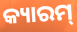
କ୍ୟାରମ୍